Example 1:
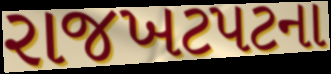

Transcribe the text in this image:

રાજખટપટના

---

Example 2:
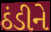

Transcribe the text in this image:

ઠંડીને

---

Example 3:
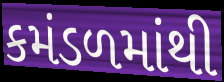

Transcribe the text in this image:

કમંડળમાંથી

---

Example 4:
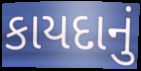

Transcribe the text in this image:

કાયદાનું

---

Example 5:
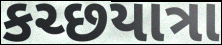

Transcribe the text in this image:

કચ્છયાત્રા